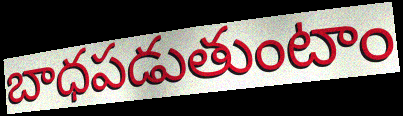
బాధపడుతుంటాం